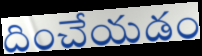
దించేయడం